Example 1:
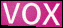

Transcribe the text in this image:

vox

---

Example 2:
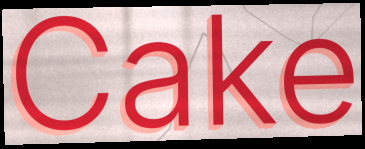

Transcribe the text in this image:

Cake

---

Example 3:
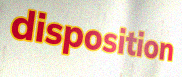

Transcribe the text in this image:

disposition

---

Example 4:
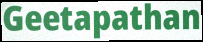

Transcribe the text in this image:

Geetapathan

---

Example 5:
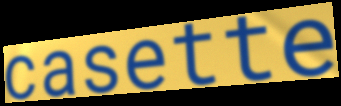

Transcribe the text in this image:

casette